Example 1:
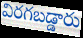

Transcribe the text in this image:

విరగబడ్డారు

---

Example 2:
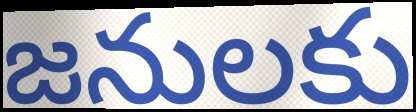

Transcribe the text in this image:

జనులకు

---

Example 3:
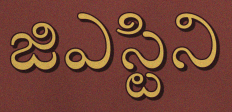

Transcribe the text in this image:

జిఎస్టిని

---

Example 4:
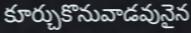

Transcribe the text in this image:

కూర్చుకొనువాడవునైన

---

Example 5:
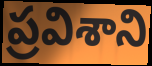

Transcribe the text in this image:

ప్రవిశాని